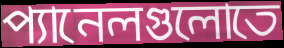
প্যানেলগুলোতে